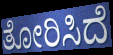
ತೋರಿಸಿದೆ